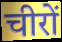
चीरों